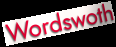
Wordswoth